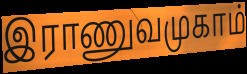
இராணுவமுகாம்